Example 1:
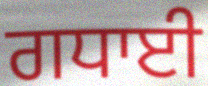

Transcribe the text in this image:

ਗਧਾਈ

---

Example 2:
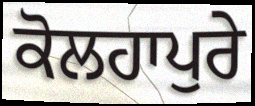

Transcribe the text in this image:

ਕੋਲਹਾਪੁਰੇ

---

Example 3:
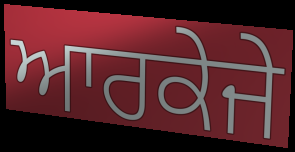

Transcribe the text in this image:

ਆਰਕੇਜੇ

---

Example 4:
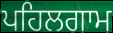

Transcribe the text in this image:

ਪਹਿਲਗਾਮ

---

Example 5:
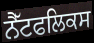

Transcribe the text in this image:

ਨੈੱਟਫਲਿਕਸ